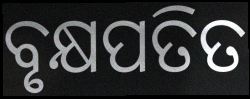
ବୃକ୍ଷପତିତ